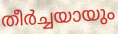
തീർച്ചയായും